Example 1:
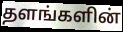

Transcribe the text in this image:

தளங்களின்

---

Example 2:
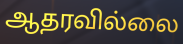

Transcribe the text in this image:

ஆதரவில்லை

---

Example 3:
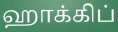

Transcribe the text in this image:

ஹாக்கிப்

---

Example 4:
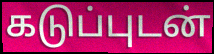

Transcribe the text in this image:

கடுப்புடன்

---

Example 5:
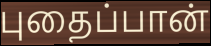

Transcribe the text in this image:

புதைப்பான்